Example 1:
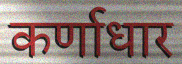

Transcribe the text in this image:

कर्णाधार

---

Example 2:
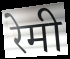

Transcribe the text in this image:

रेमी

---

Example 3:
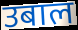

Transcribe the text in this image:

उबाल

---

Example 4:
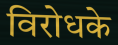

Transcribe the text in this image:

विरोधके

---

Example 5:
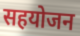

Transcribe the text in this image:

सहयोजन